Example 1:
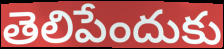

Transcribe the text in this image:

తెలిపేందుకు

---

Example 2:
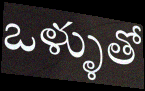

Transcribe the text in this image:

ఒళ్ళుతో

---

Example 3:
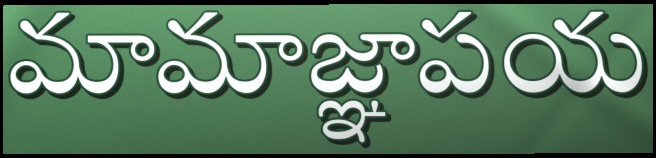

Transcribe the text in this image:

మామాజ్ఞాపయ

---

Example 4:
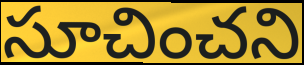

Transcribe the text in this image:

సూచించని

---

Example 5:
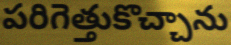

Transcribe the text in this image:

పరిగెత్తుకొచ్చాను